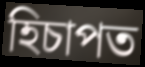
হিচাপত